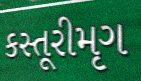
કસ્તૂરીમૃગ